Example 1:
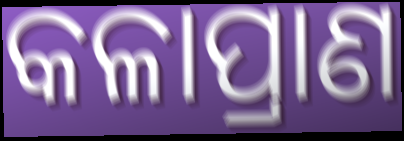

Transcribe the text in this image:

କଳାପ୍ରାଣ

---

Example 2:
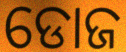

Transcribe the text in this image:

ଡୋଜ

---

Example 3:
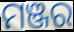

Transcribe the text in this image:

ମଞ୍ଜର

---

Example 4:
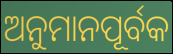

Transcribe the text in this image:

ଅନୁମାନପୂର୍ବକ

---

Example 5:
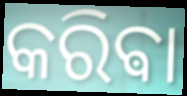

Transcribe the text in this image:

କରିଵା